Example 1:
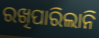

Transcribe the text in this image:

ରଖିପାରିଲାନି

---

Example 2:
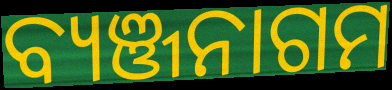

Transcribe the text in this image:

ବ୍ୟଞ୍ଜନାଗମ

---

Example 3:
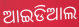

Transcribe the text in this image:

ଆଇଡିଆଲ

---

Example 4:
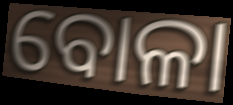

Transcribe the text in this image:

ବୋଳା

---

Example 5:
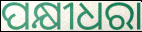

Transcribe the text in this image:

ପକ୍ଷୀଧରା